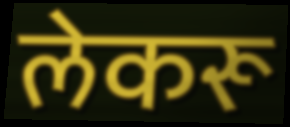
लेकरू